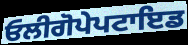
ਓਲੀਗੋਪੇਪਟਾਇਡ